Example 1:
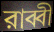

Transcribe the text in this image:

রাব্বী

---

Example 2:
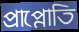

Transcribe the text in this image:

প্রাপ্নোতি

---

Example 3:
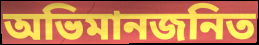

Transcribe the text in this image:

অভিমানজনিত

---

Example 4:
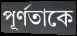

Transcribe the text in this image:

পূর্ণতাকে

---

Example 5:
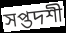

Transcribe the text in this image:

সপ্তদশী